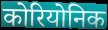
कोरियोनिक